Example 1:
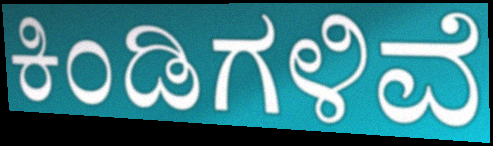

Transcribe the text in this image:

ಕಿಂಡಿಗಳಿವೆ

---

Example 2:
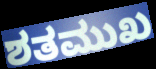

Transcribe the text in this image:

ಶತಮುಖ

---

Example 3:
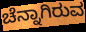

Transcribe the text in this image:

ಚೆನ್ನಾಗಿರುವ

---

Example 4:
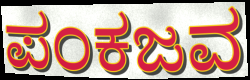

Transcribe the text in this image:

ಪಂಕಜವ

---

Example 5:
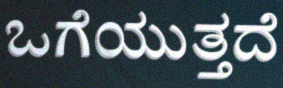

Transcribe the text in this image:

ಒಗೆಯುತ್ತದೆ